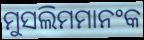
ମୁସଲିମମାନଂକ